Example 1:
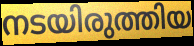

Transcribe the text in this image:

നടയിരുത്തിയ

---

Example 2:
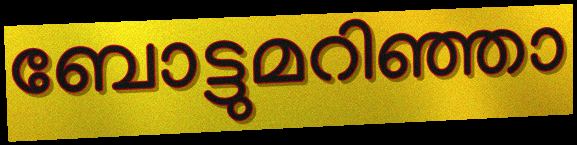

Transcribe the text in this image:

ബോട്ടുമറിഞ്ഞാ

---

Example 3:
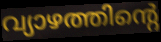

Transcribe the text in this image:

വ്യാഴത്തിന്റെ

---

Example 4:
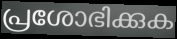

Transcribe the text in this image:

പ്രശോഭിക്കുക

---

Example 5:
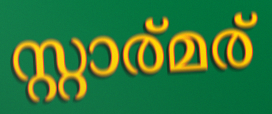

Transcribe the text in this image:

സ്റ്റാര്മര്